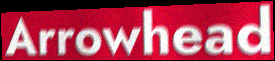
Arrowhead